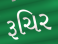
રૂચિર